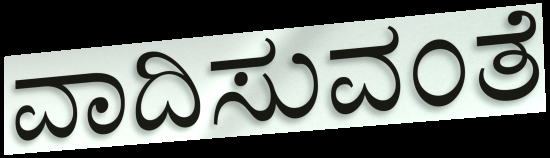
ವಾದಿಸುವಂತೆ